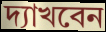
দ্যাখবেন